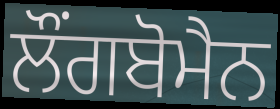
ਲੌਂਗਬੋਮੈਨ